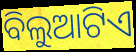
ବିଲୁଆଟିଏ